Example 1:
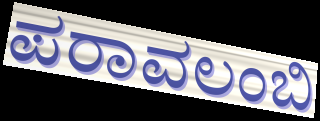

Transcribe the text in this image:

ಪರಾವಲಂಬಿ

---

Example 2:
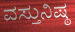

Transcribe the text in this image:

ವಸ್ತುನಿಷ್ಠ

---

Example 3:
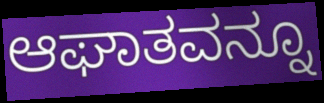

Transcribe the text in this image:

ಆಘಾತವನ್ನೂ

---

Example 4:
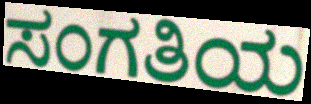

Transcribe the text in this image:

ಸಂಗತಿಯ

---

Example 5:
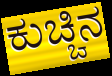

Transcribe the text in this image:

ಕುಚ್ಚಿನ